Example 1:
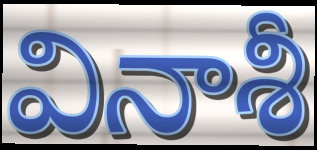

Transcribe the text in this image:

వినాశీ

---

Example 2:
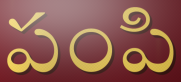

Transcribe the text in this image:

పంపి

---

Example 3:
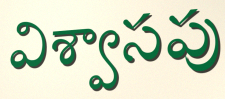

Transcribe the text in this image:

విశ్వాసపు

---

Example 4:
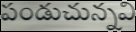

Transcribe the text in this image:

పండుచున్నవి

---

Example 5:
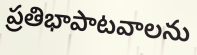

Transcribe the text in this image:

ప్రతిభాపాటవాలను